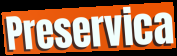
Preservica